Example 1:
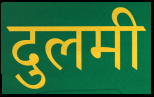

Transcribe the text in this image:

दुलमी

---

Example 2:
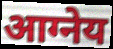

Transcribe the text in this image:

आग्नेय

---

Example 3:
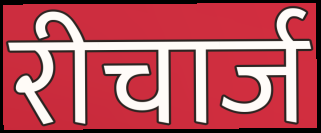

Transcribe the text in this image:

रीचार्ज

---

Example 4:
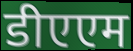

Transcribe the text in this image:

डीएएम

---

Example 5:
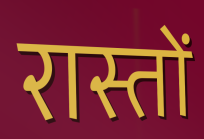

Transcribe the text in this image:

रास्‍तों